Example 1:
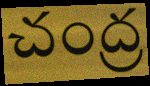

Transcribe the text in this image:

చంద్ర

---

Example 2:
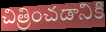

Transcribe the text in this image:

చిత్రించడానికి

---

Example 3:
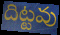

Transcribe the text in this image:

దిట్టవు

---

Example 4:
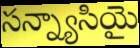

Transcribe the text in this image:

సన్న్యాసియై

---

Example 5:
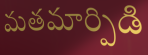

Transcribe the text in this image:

మతమార్పిడి